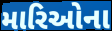
મારિઓના